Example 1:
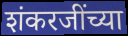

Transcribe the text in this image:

शंकरजींच्या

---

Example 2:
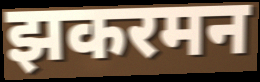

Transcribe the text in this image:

झकरमन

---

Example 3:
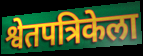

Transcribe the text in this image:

श्वेतपत्रिकेला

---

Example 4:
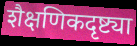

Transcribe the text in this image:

शैक्षणिकदृष्ट्या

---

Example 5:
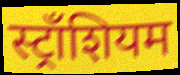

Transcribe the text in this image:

स्ट्राँशियम